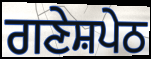
ਗਣੇਸ਼ਪੇਠ